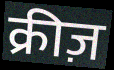
क्रीज़